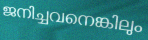
ജനിച്ചവനെങ്കിലും